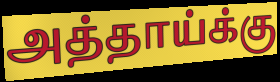
அத்தாய்க்கு